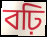
বঢ়ি